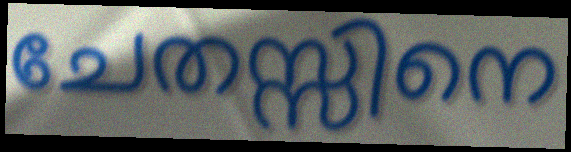
ചേതസ്സിനെ